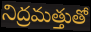
నిద్రమత్తుతో